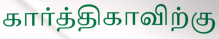
கார்த்திகாவிற்கு